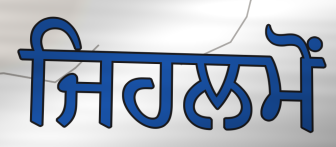
ਜਿਹਲਮੋਂ